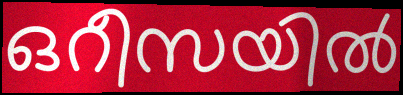
ഒറീസയിൽ